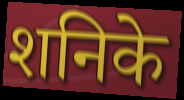
शनिके